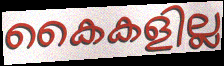
കൈകളില്ല